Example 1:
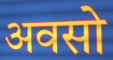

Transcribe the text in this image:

अवसो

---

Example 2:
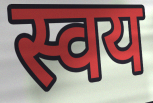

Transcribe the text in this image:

स्वय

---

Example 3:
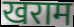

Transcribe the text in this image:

खराम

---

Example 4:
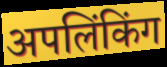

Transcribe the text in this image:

अपलिंकिंग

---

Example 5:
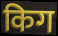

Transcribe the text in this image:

किग